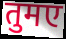
तुमए